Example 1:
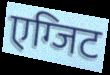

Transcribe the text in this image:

एग्जिट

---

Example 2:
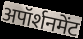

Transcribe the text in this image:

अपॉर्शनमेंट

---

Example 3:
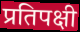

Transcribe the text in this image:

प्रतिपक्षी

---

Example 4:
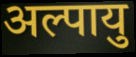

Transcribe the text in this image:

अल्पायु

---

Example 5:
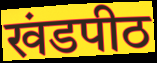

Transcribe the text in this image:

खंडपीठ